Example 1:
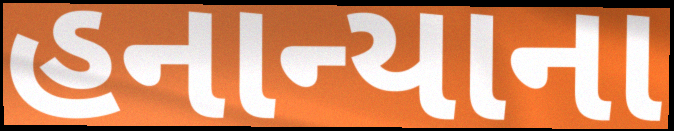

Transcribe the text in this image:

હનાન્યાના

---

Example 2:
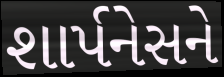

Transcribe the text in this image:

શાર્પનેસને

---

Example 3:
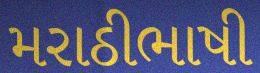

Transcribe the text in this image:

મરાઠીભાષી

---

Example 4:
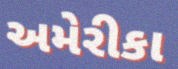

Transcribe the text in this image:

અમેરીકા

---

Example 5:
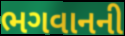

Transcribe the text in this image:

ભગવાનની